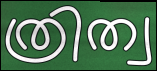
ത്രിത്വ